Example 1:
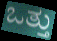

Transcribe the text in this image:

ಒತ್ತು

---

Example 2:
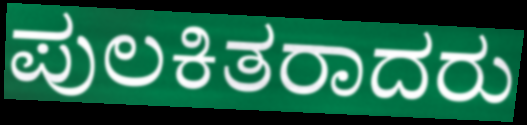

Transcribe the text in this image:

ಪುಲಕಿತರಾದರು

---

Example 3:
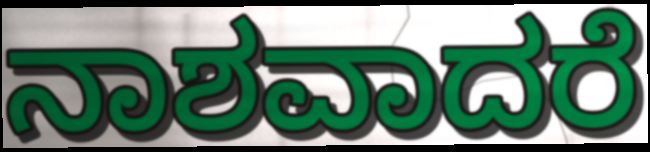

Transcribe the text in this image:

ನಾಶವಾದರೆ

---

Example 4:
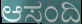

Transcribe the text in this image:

ಆಸಂದಿ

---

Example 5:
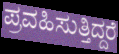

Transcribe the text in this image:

ಪ್ರವಹಿಸುತ್ತಿದ್ದರೆ